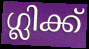
ഗ്ലിക്ക്